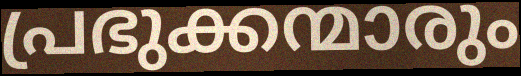
പ്രഭുക്കന്മാരും